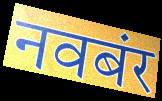
नवबंर